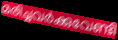
മരിച്ചവർക്കുവേണ്ടി